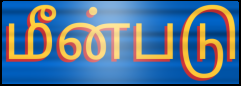
மீன்படு